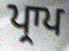
ਪ੍ਰਾਪ